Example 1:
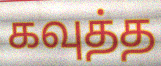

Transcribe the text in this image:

கவுத்த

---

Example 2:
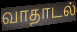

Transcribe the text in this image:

வாதாடல்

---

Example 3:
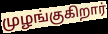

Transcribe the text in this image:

முழங்குகிறார்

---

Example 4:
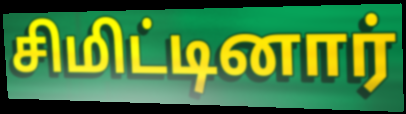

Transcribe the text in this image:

சிமிட்டினார்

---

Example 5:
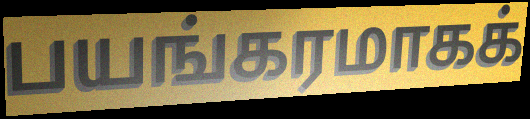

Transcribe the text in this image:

பயங்கரமாகக்